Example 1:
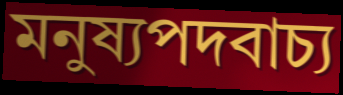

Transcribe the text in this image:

মনুষ্যপদবাচ্য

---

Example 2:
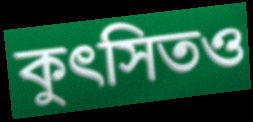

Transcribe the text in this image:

কুৎসিতও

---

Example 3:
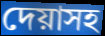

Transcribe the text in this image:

দেয়াসহ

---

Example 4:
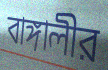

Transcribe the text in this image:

বাঙ্গালীর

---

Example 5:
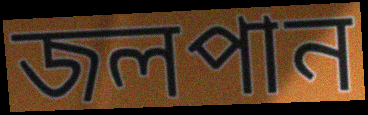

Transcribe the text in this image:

জলপান